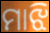
ମାଝି